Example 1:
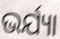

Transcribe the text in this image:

ଭର୍ଯ୍ୟା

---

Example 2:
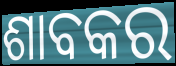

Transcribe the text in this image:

ଶାବକର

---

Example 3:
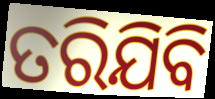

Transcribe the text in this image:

ତରିଯିବି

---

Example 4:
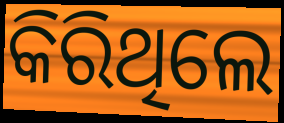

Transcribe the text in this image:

କିରିଥିଲେ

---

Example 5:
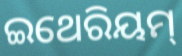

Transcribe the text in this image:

ଇଥେରିୟମ୍